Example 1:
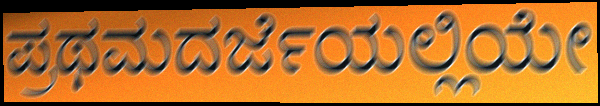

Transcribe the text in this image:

ಪ್ರಥಮದರ್ಜೆಯಲ್ಲಿಯೇ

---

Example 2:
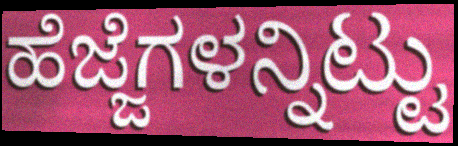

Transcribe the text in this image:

ಹೆಜ್ಜೆಗಳನ್ನಿಟ್ಟು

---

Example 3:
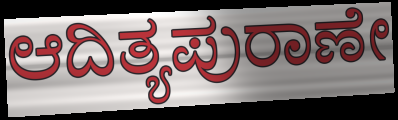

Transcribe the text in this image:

ಆದಿತ್ಯಪುರಾಣೇ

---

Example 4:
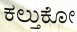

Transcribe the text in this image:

ಕಲ್ತುಕೋ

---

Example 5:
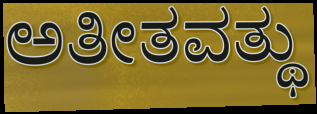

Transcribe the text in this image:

ಅತೀತವತ್ಥು